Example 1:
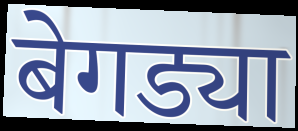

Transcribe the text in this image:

बेगड्या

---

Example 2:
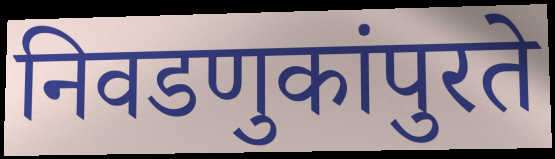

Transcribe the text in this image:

निवडणुकांपुरते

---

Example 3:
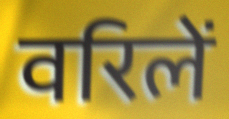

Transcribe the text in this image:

वरिलें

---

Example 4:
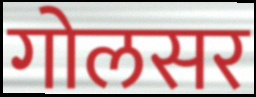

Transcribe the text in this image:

गोलसर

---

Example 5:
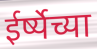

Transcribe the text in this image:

ईर्ष्येच्या